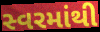
સ્વરમાંથી